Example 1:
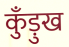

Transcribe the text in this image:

कुँड़ुख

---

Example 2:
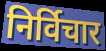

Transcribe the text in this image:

निर्विचार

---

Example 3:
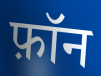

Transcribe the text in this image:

फ़ॉन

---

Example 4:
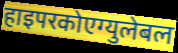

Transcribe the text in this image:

हाइपरकोएग्युलेबल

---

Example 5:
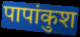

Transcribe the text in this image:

पापांकुश